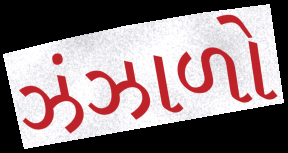
ઝંઝાળો